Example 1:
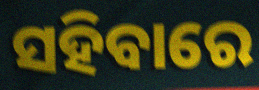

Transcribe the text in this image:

ସହିବାରେ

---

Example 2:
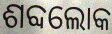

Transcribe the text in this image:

ଶବ୍ଦଲୋକ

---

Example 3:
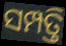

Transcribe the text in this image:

ସମ୍ପତ୍ତି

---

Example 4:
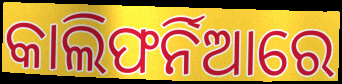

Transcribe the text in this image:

କାଲିଫର୍ନିଆରେ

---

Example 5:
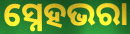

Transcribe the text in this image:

ସ୍ନେହଭରା